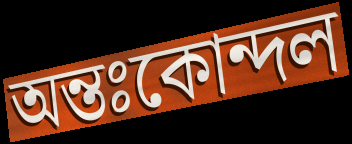
অন্তঃকোন্দল